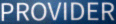
PROVIDER